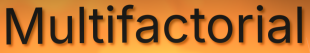
Multifactorial